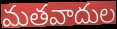
మతవాదుల